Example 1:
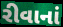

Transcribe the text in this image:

રીવાનાં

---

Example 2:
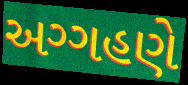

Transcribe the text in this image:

અગ્ગહણે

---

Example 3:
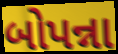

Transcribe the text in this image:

બોપન્ના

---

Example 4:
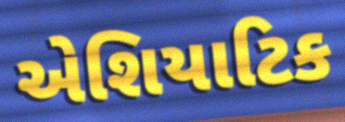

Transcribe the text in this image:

એશિયાટિક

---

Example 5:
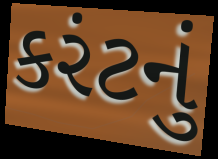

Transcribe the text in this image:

કરંટનું